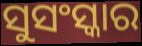
ସୁସଂସ୍କାର